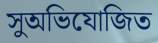
সুঅভিযোজিত